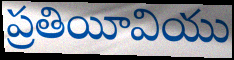
ప్రతియీవియు